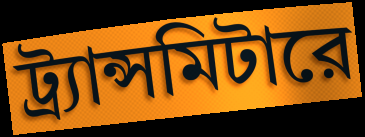
ট্র্যান্সমিটারে